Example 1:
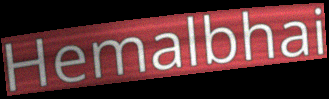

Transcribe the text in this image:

Hemalbhai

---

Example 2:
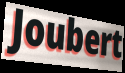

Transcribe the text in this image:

Joubert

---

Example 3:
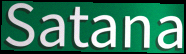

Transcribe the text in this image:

Satana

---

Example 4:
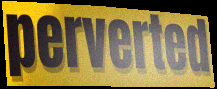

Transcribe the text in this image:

perverted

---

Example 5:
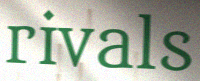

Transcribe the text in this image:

rivals